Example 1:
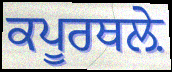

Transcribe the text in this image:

ਕਪੂਰਥਲ਼ੇ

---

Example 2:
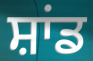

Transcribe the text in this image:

ਸ਼ਾਂਡ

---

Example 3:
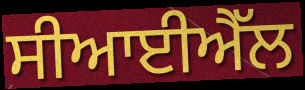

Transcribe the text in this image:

ਸੀਆਈਐੱਲ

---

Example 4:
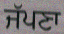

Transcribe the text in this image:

ਜੱਪਣਾ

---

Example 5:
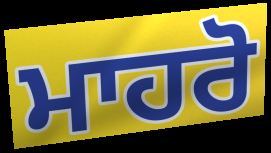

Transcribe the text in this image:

ਮਾਹਰੋ